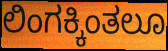
ಲಿಂಗಕ್ಕಿಂತಲೂ